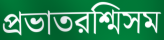
প্রভাতরশ্মিসম